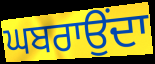
ਘਬਰਾਉਂਦਾ